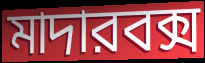
মাদারবক্স